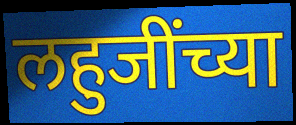
लहुजींच्या